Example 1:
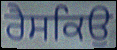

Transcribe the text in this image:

ਰੈਸਕਿਉ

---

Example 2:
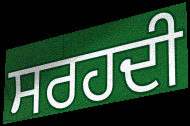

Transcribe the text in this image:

ਸਰਹਦੀ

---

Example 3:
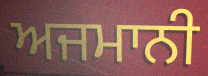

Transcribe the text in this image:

ਅਜਮਾਨੀ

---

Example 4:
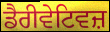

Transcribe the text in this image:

ਡੈਰੀਵੇਟਿਵਜ਼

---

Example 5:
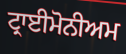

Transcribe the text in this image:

ਟ੍ਰਾਈਮੋਨੀਅਮ